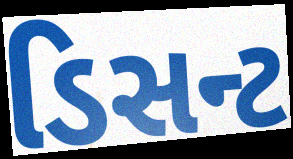
ડિસન્ટ